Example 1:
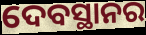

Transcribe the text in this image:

ଦେବସ୍ଥାନର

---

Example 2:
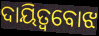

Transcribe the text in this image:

ଦାୟିତ୍ୱବୋଝ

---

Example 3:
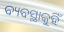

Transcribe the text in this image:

ବ୍ୟବସ୍ଥାକୁହିଁ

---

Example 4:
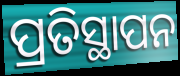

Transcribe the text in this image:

ପ୍ରତିସ୍ଥାପନ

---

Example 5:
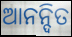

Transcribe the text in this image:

ଆନନ୍ଦିତ